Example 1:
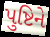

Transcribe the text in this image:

પુષ્ટિને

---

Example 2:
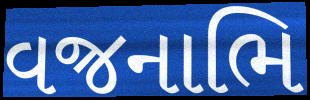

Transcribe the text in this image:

વજ્રનાભિ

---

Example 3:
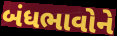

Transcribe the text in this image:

બંધભાવોને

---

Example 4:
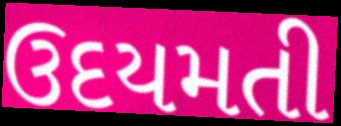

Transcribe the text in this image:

ઉદયમતી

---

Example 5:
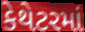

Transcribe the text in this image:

કેથેટરમાં